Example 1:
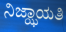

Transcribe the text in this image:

ನಿಜ್ಝಾಯತಿ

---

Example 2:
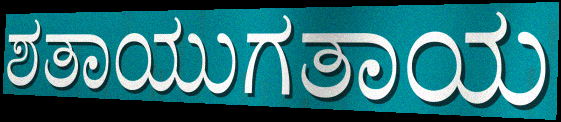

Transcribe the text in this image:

ಶತಾಯುಗತಾಯ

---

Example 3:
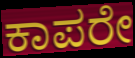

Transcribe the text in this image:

ಕಾಪರೇ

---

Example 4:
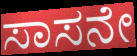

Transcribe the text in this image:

ಸಾಸನೇ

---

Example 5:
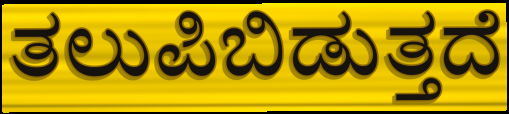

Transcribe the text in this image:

ತಲುಪಿಬಿಡುತ್ತದೆ